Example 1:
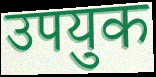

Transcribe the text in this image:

उपयुक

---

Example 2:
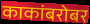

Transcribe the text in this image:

काकांबरोबर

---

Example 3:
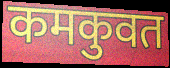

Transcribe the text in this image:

कमकुवत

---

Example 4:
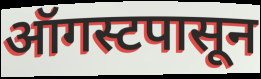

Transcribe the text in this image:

ऑगस्टपासून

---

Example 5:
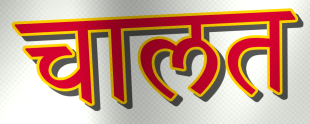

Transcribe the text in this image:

चालत